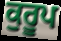
ਕੁਰੂਪ